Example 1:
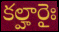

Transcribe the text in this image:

కల్హారైః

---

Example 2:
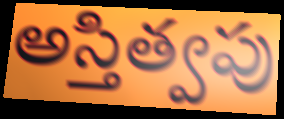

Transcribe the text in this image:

అస్తిత్వపు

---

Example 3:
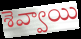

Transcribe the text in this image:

శెవ్వాయి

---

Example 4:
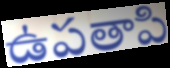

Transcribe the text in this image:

ఉపతాపి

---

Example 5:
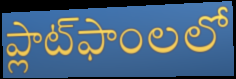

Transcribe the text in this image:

ప్లాట్‌ఫాంలలో